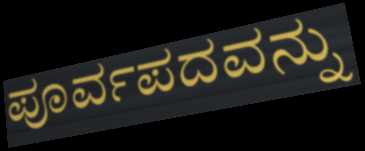
ಪೂರ್ವಪದವನ್ನು